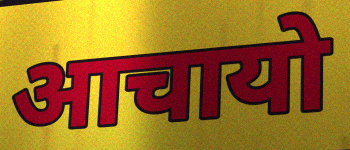
आचायो